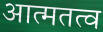
आत्मतत्व